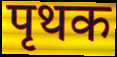
पृथक